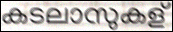
കടലാസുകള്